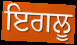
ਇਗਲੂ